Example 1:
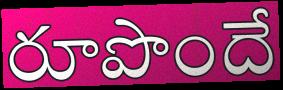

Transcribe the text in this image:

రూపొందే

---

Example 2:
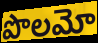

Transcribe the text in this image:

పొలమో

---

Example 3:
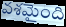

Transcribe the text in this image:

వశమైంది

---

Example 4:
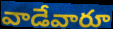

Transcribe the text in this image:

వాడేవారూ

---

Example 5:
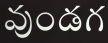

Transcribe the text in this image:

వుండగ